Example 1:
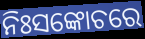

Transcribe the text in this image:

ନିଃସଙ୍କୋଚରେ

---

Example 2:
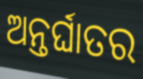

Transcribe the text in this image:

ଅନ୍ତର୍ଘାତର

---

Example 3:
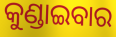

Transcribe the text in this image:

କୁଣ୍ଡାଇବାର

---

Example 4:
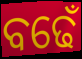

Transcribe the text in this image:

ବଢେଁ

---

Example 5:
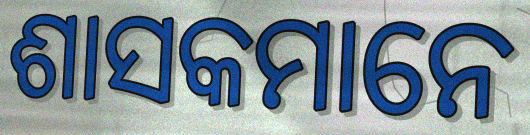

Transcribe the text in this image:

ଶାସକମାନେ